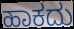
ಹಾಕದು